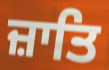
ਜ਼ਾਤਿ